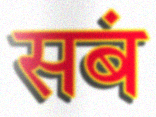
सबं